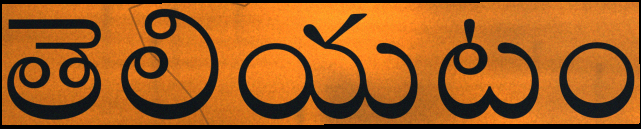
తెలియటం